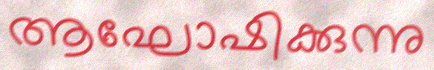
ആഘോഷിക്കുന്നു